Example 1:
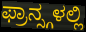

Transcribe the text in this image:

ಫ್ರಾನ್ಸ್ಗಳಲ್ಲಿ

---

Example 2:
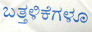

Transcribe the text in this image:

ಬತ್ತಳಿಕೆಗಳೂ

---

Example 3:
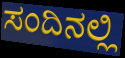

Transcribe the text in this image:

ಸಂದಿನಲ್ಲಿ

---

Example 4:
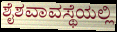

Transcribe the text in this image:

ಶೈಶವಾವಸ್ಥೆಯಲ್ಲಿ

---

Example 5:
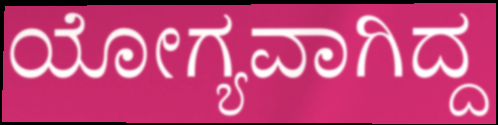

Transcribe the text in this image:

ಯೋಗ್ಯವಾಗಿದ್ದ